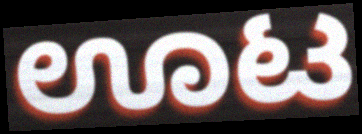
ಊಟ